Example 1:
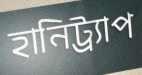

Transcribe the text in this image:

হানিট্র্যাপ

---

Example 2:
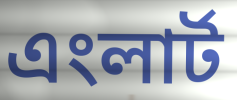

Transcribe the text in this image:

এংলার্ট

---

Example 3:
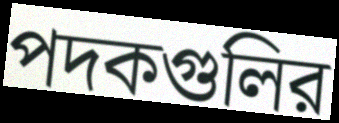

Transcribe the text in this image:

পদকগুলির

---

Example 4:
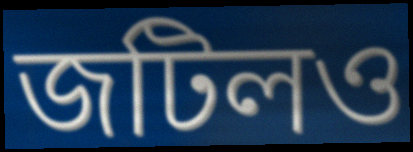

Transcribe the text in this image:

জটিলও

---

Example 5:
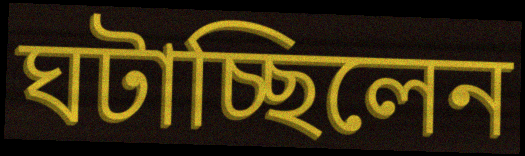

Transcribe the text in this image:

ঘটাচ্ছিলেন